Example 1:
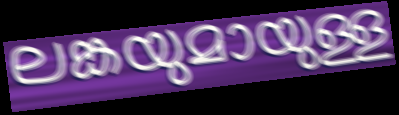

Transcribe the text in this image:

ലങ്കയുമായുള്ള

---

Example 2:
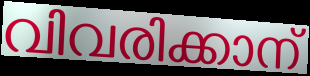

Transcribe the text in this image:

വിവരിക്കാന്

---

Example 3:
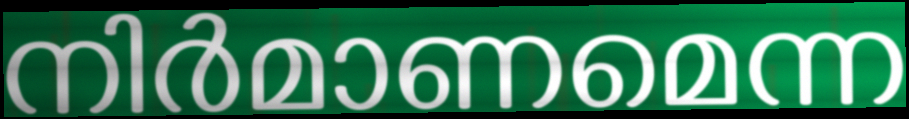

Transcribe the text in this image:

നിർമാണമെന്ന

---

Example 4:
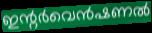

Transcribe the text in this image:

ഇന്റർവെൻഷണൽ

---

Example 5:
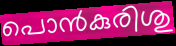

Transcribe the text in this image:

പൊൻകുരിശു